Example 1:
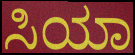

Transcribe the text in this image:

ಸಿಯಾ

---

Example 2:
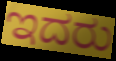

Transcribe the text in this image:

ಇದರು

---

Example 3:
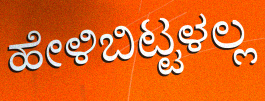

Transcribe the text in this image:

ಹೇಳಿಬಿಟ್ಟಳಲ್ಲ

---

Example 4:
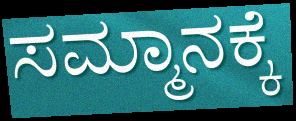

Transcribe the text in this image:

ಸಮ್ಮಾನಕ್ಕೆ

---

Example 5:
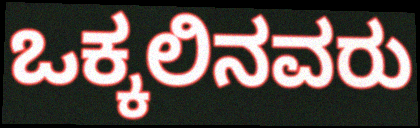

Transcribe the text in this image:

ಒಕ್ಕಲಿನವರು